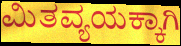
ಮಿತವ್ಯಯಕ್ಕಾಗಿ